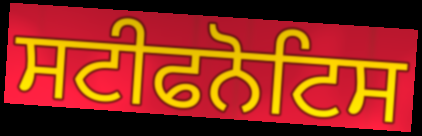
ਸਟੀਫਨੋਟਿਸ